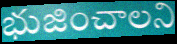
భుజించాలని